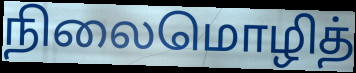
நிலைமொழித்